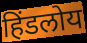
हिंडलोय